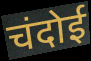
चंदोई